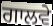
ਗਾਲਵੇ